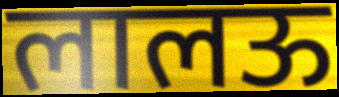
लालऊ